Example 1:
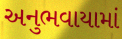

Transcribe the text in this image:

અનુભવાયામાં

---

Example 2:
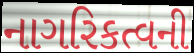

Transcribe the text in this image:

નાગરિકત્વની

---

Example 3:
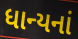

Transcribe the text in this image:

ધાન્યનાં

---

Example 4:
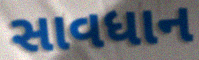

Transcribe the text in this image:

સાવધાન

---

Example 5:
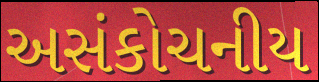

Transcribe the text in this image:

અસંકોચનીય